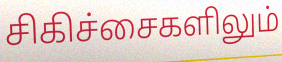
சிகிச்சைகளிலும்